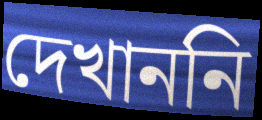
দেখাননি